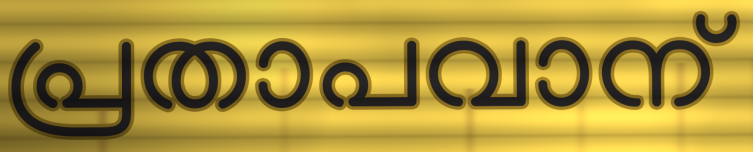
പ്രതാപവാന്